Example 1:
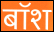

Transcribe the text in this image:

बॉश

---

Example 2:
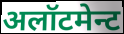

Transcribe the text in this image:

अलॉटमेन्ट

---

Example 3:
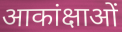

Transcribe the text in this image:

आकांक्षाओं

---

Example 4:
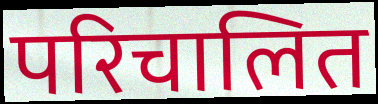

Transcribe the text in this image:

परिचालित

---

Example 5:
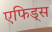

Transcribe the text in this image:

एफिड्स